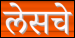
लेसचे